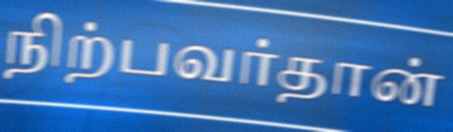
நிற்பவர்தான்